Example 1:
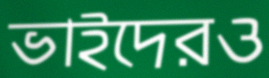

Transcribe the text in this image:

ভাইদেরও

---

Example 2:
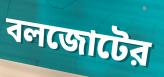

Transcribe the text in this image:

বলজোটের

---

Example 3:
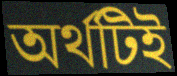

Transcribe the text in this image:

অর্থটিই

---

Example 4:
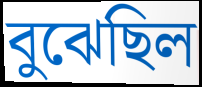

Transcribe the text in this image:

বুঝেছিল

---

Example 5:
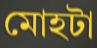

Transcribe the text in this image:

মোহটা